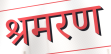
श्रमरण